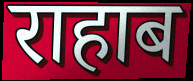
राहाब